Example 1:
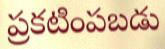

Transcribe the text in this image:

ప్రకటింపబడు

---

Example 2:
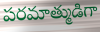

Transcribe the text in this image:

పరమాత్ముడిగా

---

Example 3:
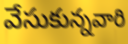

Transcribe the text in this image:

వేసుకున్నవారి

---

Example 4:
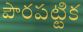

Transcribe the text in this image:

పౌరపట్టిక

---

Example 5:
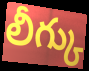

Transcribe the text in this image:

లీగ్కు